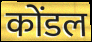
कोंडल